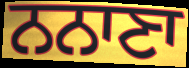
ਨਨਾਣਾ